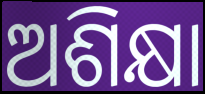
ଅଶିକ୍ଷା